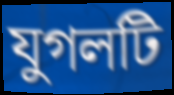
যুগলটি